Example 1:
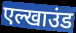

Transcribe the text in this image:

एल्खाउंड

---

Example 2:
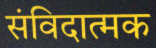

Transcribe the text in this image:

संविदात्मक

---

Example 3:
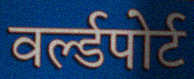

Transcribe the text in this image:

वर्ल्डपोर्ट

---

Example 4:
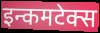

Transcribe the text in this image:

इन्कमटेक्स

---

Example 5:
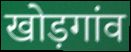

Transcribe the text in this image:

खोड़गांव